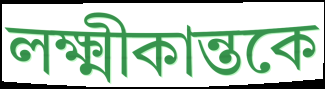
লক্ষ্মীকান্তকে